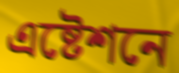
এষ্টেশনে